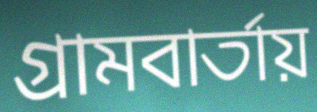
গ্রামবার্তায়